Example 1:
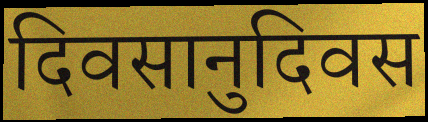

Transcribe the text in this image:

दिवसानुदिवस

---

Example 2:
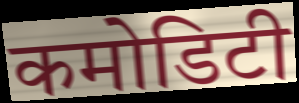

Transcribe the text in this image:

कमोडिटी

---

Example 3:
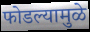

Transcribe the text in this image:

फोडल्यामुळे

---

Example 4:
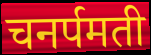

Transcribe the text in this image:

चनर्पमती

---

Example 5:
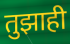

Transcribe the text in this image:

तुझाही